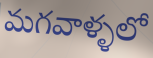
మగవాళ్ళలో